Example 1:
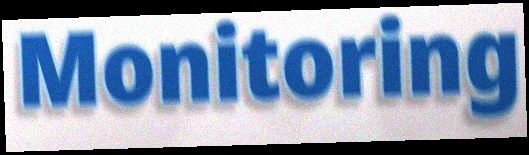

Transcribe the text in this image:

Monitoring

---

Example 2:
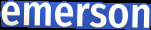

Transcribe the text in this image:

emerson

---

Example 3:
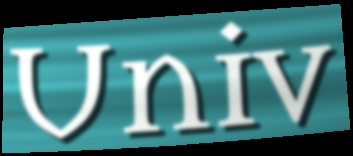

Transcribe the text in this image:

Univ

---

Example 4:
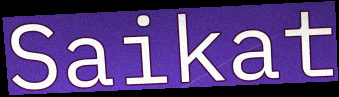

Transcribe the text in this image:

Saikat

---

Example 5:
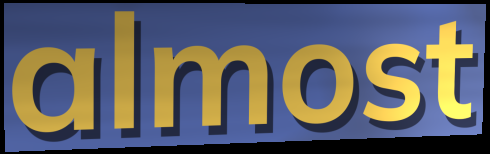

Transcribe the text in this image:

almost